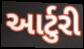
આર્ટુરી